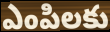
ఎంపిలకు